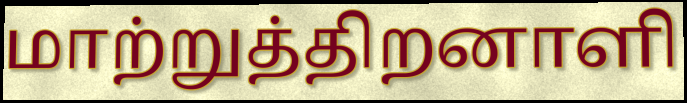
மாற்றுத்திறனாளி